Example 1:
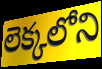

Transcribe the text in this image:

లెక్కలోని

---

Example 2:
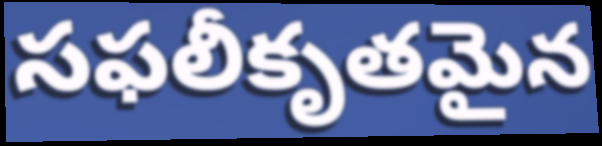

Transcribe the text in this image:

సఫలీకృతమైన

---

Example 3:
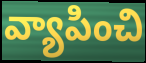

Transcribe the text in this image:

వ్యాపించి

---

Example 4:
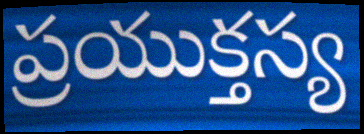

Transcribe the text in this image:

ప్రయుక్తస్య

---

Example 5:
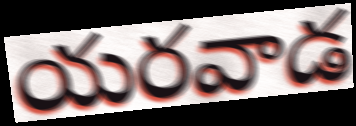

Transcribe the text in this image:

యరవాడ